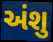
અંશુ